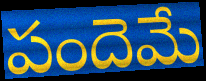
పందెమే